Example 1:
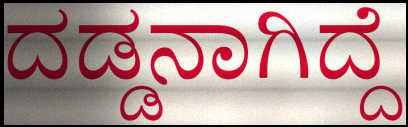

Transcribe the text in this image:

ದಡ್ಡನಾಗಿದ್ದೆ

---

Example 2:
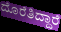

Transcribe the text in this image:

ದೊರೆತಿದ್ದಾರೆ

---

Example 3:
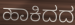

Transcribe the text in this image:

ಹಾಕಿದದ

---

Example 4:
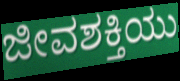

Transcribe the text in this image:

ಜೀವಶಕ್ತಿಯು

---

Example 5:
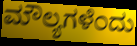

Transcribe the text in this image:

ಮೌಲ್ಯಗಳೆಂದು